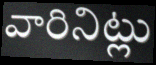
వారినిట్లు